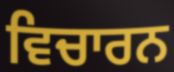
ਵਿਚਾਰਨ